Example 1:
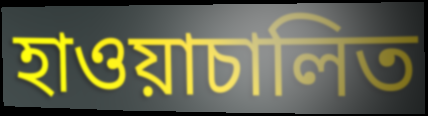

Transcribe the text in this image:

হাওয়াচালিত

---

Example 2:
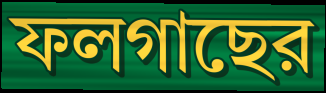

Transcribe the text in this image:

ফলগাছের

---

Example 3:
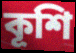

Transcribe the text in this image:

কূশি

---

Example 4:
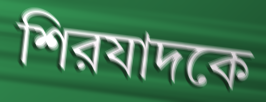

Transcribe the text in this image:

শিরযাদকে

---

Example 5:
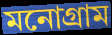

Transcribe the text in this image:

মনোগ্রাম